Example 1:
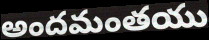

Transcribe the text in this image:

అందమంతయు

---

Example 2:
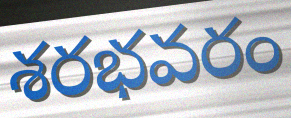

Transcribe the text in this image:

శరభవరం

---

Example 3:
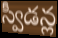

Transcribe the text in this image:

స్వీడన్ల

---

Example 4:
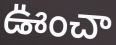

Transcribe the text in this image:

ఊంచా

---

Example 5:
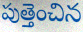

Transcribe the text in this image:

పుత్తెంచిన